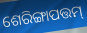
ଶେରିଙ୍ଗାପତ୍ତମ୍